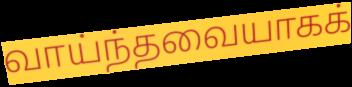
வாய்ந்தவையாகக்